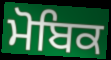
ਮੋਬਿਕ